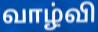
வாழ்வி